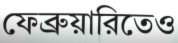
ফেব্রুয়ারিতেও